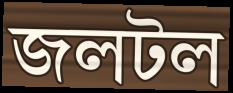
জলটল